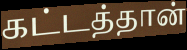
கட்டத்தான்